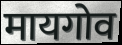
मायगोव